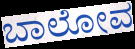
ಬಾಲೋವ